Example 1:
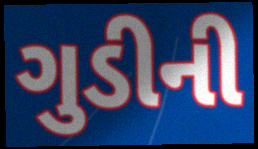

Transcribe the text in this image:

ગુડીની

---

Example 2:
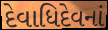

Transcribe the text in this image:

દેવાધિદેવનાં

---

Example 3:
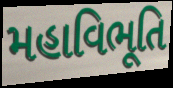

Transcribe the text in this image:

મહાવિભૂતિ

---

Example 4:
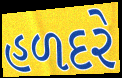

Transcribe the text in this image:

હળદરે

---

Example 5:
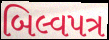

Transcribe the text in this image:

બિલ્વપત્ર